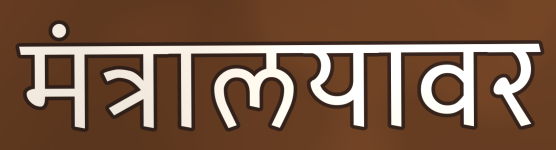
मंत्रालयावर